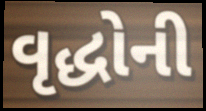
વૃદ્ધોની